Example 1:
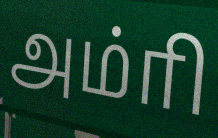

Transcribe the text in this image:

அம்ரி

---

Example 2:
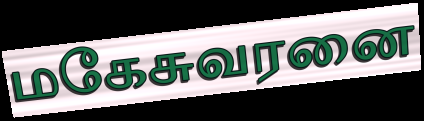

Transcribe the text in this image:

மகேசுவரனை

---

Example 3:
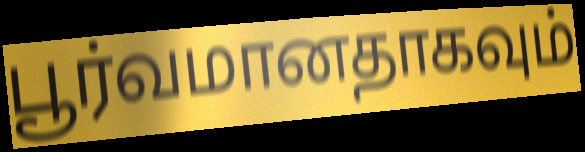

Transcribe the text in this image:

பூர்வமானதாகவும்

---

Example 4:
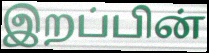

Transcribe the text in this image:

இறப்பின்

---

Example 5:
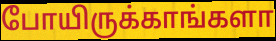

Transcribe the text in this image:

போயிருக்காங்களா